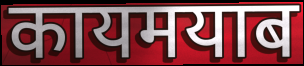
कायमयाब